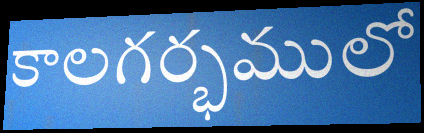
కాలగర్భములో